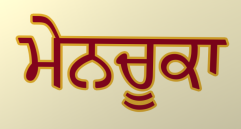
ਮੇਨਚੂਕਾ